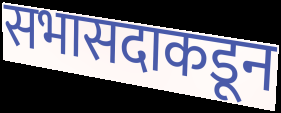
सभासदाकडून